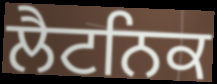
ਲੈਟਨਿਕ